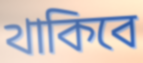
থাকিবে